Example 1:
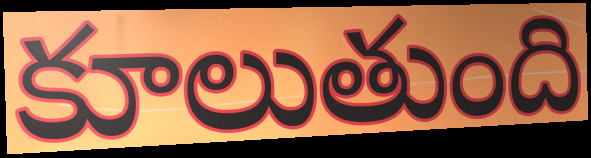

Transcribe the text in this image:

కూలుతుంది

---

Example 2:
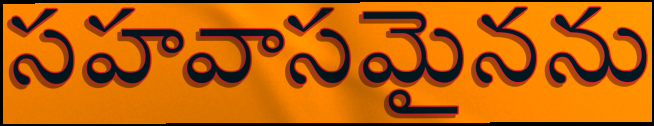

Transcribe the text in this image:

సహవాసమైనను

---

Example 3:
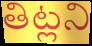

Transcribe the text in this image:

తిట్లని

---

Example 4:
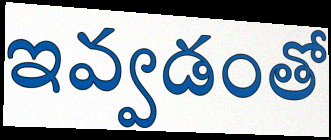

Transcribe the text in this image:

ఇవ్వడంతో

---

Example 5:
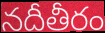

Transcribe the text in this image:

నదీతీరం